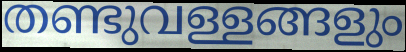
തണ്ടുവള്ളങ്ങളും